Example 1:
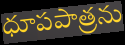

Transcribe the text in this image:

ధూపపాత్రను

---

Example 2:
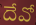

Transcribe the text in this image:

దేవో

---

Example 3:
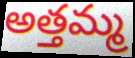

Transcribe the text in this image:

అత్తమ్మ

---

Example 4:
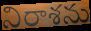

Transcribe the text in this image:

నిరాశను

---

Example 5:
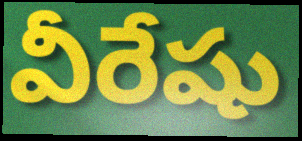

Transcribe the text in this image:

వీరేషు